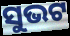
ସୁଭଟ